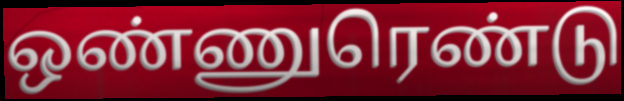
ஒண்ணுரெண்டு